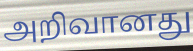
அறிவானது